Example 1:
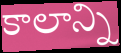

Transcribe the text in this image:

కాలాన్ని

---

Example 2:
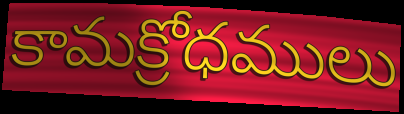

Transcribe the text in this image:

కామక్రోధములు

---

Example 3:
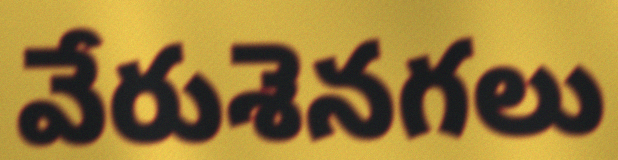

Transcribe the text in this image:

వేరుశెనగలు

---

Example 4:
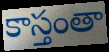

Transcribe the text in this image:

కాస్తంతా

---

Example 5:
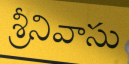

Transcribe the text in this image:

శ్రీనివాసు